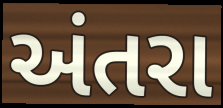
અંતરા